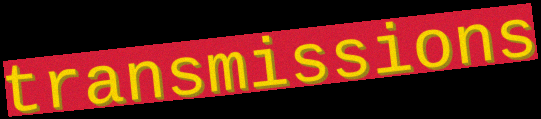
transmissions